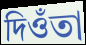
দিওঁতা